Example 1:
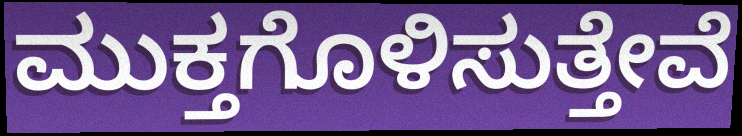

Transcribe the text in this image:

ಮುಕ್ತಗೊಳಿಸುತ್ತೇವೆ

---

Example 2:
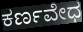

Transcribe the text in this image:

ಕರ್ಣವೇಧ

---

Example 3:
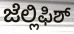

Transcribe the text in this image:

ಜೆಲ್ಲಿಫಿಶ್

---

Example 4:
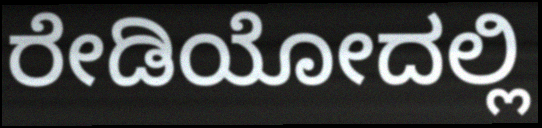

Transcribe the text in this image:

ರೇಡಿಯೋದಲ್ಲಿ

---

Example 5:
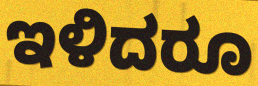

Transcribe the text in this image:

ಇಳಿದರೂ